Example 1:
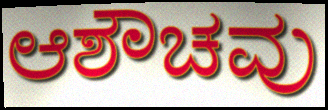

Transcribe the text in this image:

ಆಶೌಚವು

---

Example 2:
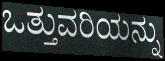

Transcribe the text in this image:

ಒತ್ತುವರಿಯನ್ನು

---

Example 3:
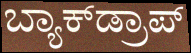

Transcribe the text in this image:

ಬ್ಯಾಕ್‌ಡ್ರಾಪ್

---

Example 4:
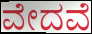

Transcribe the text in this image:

ವೇದವೆ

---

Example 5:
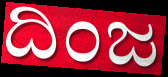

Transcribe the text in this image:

ದಿಂಜ